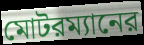
মোটরম্যানের